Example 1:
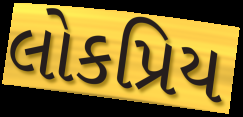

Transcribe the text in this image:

લોકપ્રિય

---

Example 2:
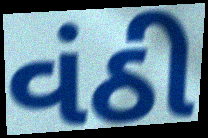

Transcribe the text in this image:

વંઠી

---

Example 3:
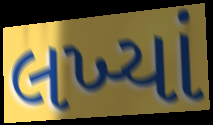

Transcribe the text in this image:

લખ્યાં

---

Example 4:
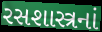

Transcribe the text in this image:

રસશાસ્ત્રનાં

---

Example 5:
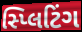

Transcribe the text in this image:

સ્પ્લિટિંગ